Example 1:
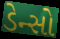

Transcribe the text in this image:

ડેન્સો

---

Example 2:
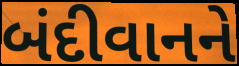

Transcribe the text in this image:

બંદીવાનને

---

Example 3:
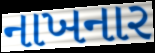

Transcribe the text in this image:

નાખનાર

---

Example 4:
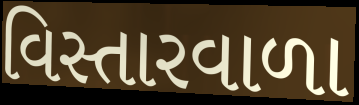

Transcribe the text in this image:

વિસ્તારવાળા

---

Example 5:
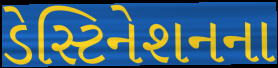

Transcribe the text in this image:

ડેસ્ટિનેશનના